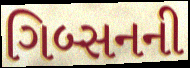
ગિબ્સનની